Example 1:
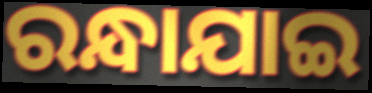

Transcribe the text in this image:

ରନ୍ଧାଯାଇ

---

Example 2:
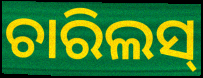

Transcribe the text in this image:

ଚାରିଲସ୍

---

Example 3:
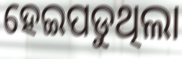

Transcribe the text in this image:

ହେଇପଡୁଥିଲା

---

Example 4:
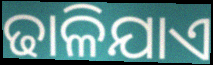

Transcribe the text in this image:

ଢାଳିଯାଏ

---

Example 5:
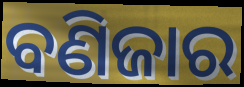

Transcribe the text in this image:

ବଣିଜାର